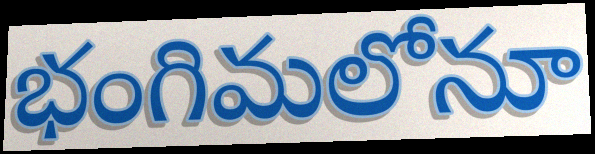
భంగిమలోనూ